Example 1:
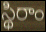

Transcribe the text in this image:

స్థిరాం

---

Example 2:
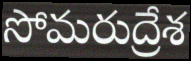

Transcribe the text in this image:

సోమరుద్రేశ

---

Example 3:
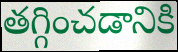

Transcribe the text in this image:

తగ్గించడానికి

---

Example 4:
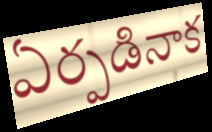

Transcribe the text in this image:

ఏర్పడినాక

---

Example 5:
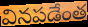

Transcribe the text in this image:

వినపడేంత